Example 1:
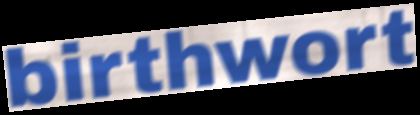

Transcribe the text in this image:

birthwort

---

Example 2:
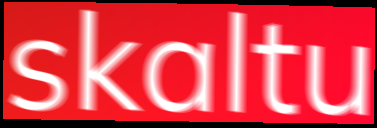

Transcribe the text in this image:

skaltu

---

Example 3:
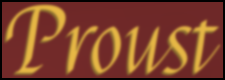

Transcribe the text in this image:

Proust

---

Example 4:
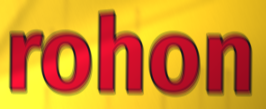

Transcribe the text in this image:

rohon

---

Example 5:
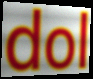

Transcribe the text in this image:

dol